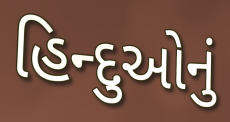
હિન્દુઓનું